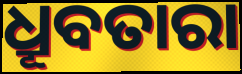
ଧ୍ରୂବତାରା